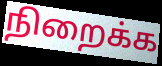
நிறைக்க